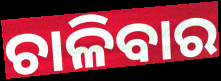
ଚାଳିବାର